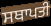
ਸਥਾਪਤੀ